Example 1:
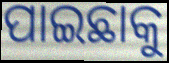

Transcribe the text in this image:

ପାଇଛାକୁ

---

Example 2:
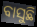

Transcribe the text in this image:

ବାସୁଛି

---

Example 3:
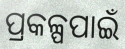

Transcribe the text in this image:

ପ୍ରକଳ୍ପପାଇଁ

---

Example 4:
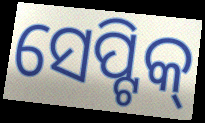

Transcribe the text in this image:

ସେପ୍ଟିକ୍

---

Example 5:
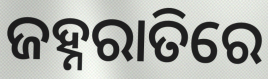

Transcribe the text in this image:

ଜହ୍ନରାତିରେ